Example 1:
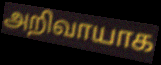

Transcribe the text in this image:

அறிவாயாக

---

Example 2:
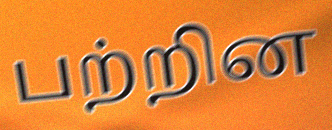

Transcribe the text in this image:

பற்றின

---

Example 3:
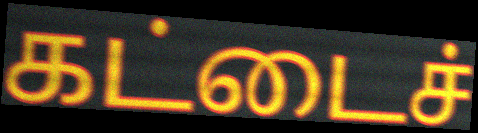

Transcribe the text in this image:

கட்டைச்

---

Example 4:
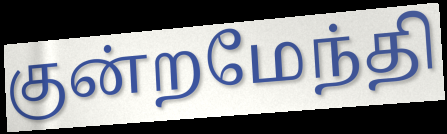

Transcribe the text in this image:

குன்றமேந்தி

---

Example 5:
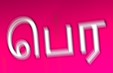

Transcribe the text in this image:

பெர